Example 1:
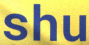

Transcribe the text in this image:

shu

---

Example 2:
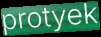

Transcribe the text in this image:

protyek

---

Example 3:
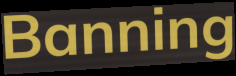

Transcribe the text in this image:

Banning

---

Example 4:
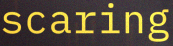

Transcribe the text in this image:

scaring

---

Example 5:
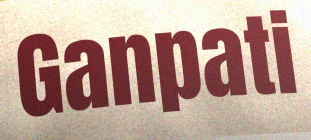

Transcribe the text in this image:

Ganpati